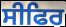
ਸੀਫਿਰ